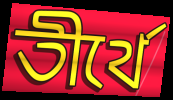
তীর্থে